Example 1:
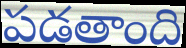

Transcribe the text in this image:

పడతాంది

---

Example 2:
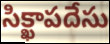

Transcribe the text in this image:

సిక్ఖాపదేసు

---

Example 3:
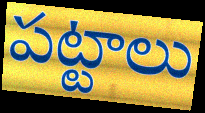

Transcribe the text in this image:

పట్టాలు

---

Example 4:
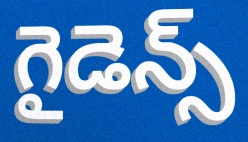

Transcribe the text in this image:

గైడెన్స్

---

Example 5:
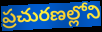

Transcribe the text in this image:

ప్రచురణల్లోని